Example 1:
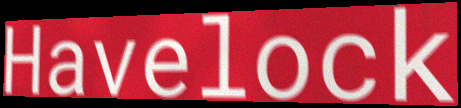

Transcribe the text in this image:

Havelock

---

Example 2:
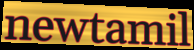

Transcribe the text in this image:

newtamil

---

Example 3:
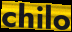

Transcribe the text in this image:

chilo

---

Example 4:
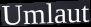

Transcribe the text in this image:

Umlaut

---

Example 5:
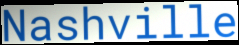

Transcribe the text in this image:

Nashville